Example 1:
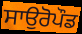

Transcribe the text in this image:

ਸਾਉਰੋਪੌਡ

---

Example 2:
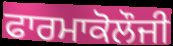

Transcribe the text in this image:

ਫਾਰਮਾਕੋਲੌਜੀ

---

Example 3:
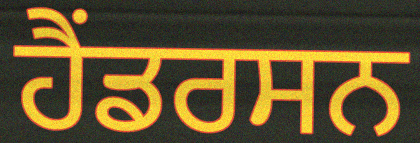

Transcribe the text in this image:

ਹੈਂਡਰਸਨ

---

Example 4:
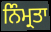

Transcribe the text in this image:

ਨਿੰਮ੍ਰਤਾ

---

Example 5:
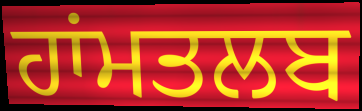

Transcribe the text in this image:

ਹਾਂਮਤਲਬ